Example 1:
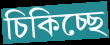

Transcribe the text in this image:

চিকিচ্ছে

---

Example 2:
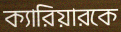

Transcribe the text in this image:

ক্যারিয়ারকে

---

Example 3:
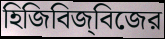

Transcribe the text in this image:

হিজিবিজ্‌বিজের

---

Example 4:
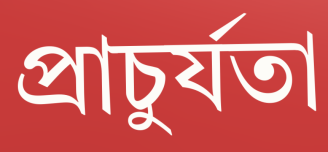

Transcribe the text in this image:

প্রাচুর্যতা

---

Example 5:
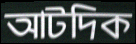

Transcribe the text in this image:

আটদিক